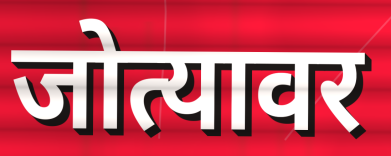
जोत्यावर